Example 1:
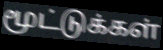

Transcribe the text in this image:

மூட்டுக்கள்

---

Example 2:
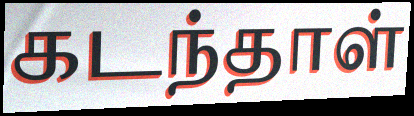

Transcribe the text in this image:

கடந்தாள்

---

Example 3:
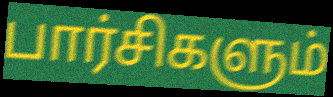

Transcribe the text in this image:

பார்சிகளும்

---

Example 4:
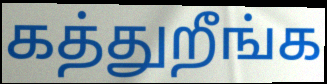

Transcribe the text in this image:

கத்துறீங்க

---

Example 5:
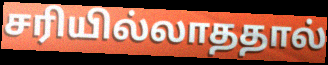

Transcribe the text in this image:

சரியில்லாததால்